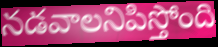
నడవాలనిపిస్తోంది